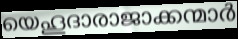
യെഹൂദാരാജാക്കന്മാർ